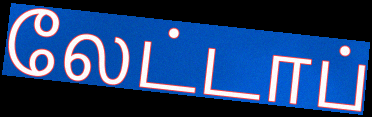
லேட்டாப்